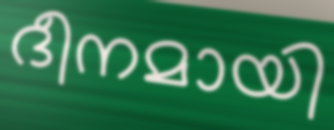
ദീനമായി